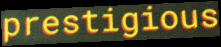
prestigious